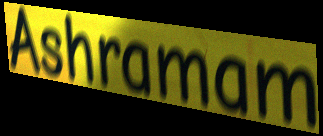
Ashramam